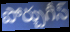
పోర్చుగీస్